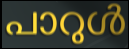
പാറുൾ